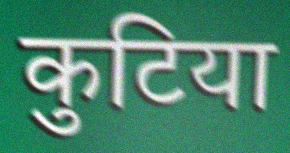
कुटिया